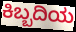
ಕಿಬ್ಬದಿಯ